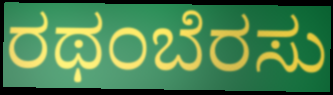
ರಥಂಬೆರಸು